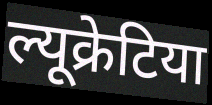
ल्यूक्रेटिया